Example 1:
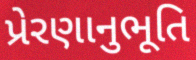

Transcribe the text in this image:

પ્રેરણાનુભૂતિ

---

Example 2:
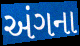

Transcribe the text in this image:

અંગના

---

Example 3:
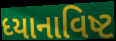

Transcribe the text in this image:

ધ્યાનાવિષ્ટ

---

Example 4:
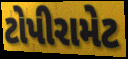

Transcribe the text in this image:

ટોપીરામેટ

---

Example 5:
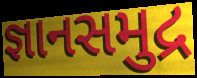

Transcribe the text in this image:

જ્ઞાનસમુદ્ર